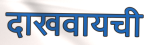
दाखवायची